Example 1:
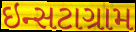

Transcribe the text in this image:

ઇન્સટાગ્રામ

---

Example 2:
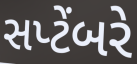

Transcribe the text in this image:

સપ્ટેંબરે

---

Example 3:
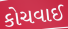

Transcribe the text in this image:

કોચવાઈ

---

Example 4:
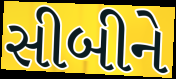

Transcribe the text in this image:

સીબીને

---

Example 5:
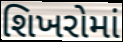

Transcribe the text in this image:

શિખરોમાં